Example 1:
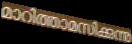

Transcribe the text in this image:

മാറിത്താമസിക്കുന്നു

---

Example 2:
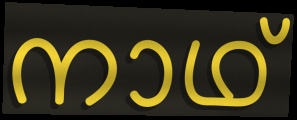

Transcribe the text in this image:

നാഥ്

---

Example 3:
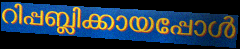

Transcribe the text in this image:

റിപ്പബ്ലിക്കായപ്പോൾ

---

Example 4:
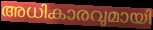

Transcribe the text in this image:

അധികാരവുമായി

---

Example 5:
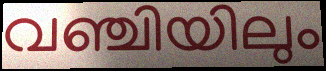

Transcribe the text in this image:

വഞ്ചിയിലും